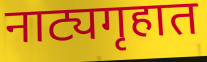
नाट्यगृहात